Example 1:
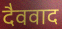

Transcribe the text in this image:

दैववाद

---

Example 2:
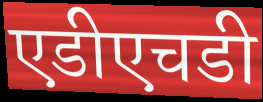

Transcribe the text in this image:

एडीएचडी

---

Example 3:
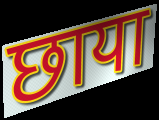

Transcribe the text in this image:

छाया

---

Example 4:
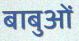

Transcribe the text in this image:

बाबुओं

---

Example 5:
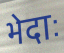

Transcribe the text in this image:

भेदाः